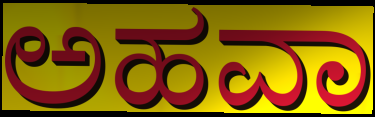
ಅಹವಾ